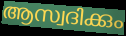
ആസ്വദിക്കും